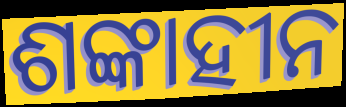
ଶଙ୍କାହୀନ